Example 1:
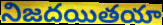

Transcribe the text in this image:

నిజదయితయా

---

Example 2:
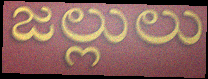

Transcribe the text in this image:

జల్లులు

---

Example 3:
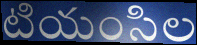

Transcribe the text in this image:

టియంసిల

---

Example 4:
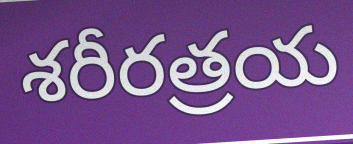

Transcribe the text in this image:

శరీరత్రయ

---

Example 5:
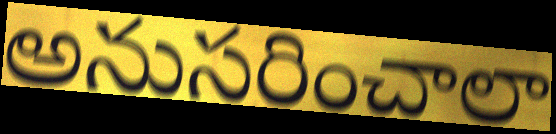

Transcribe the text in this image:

అనుసరించాలా